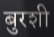
बुरशी